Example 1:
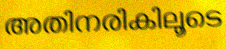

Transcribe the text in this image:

അതിനരികിലൂടെ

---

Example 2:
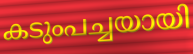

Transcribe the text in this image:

കടുംപച്ചയായി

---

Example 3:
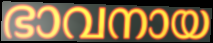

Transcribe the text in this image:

ഭാവനായ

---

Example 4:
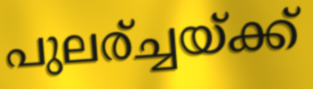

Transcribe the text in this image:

പുലര്ച്ചയ്ക്ക്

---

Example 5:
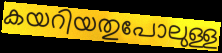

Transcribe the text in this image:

കയറിയതുപോലുള്ള